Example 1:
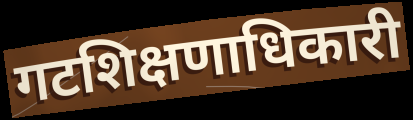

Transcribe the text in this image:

गटशिक्षणाधिकारी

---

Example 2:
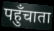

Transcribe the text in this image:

पहुँचाता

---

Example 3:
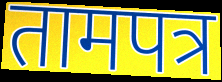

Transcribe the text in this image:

तामपत्र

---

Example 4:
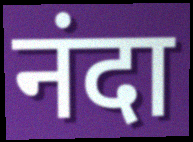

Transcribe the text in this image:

नंदा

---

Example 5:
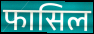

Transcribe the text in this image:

फासिल